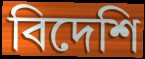
বিদেশি